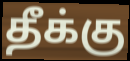
தீக்கு